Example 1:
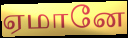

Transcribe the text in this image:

ஏமானே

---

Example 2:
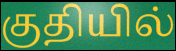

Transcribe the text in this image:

குதியில்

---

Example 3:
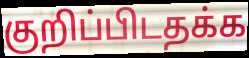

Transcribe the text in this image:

குறிப்பிடதக்க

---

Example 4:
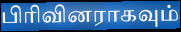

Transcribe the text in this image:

பிரிவினராகவும்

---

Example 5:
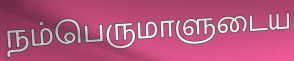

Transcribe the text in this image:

நம்பெருமாளுடைய